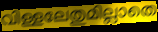
വിള്ളലേതുമില്ലാതെ